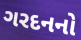
ગરદનનો